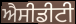
ਐਸੀਡੀਟੀ